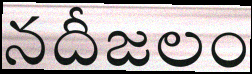
నదీజలం